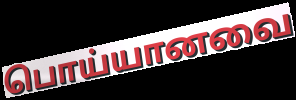
பொய்யானவை